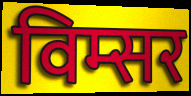
विम्सर